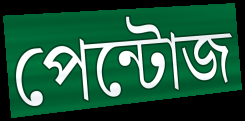
পেন্টোজ